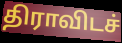
திராவிடச்